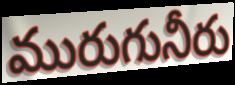
మురుగునీరు